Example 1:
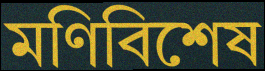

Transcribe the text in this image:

মণিবিশেষ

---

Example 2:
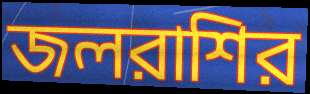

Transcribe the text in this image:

জলরাশির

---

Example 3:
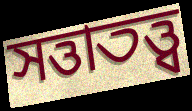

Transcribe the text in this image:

সত্তাতত্ত্ব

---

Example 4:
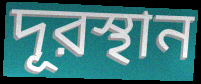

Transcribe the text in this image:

দূরস্থান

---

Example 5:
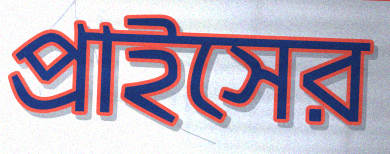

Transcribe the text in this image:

প্রাইসের